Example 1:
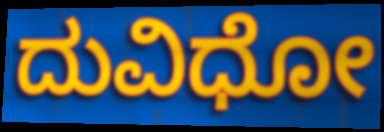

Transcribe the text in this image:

ದುವಿಧೋ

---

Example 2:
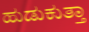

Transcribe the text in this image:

ಹುಡುಕುತ್ತಾ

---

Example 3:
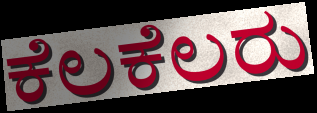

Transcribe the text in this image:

ಕೆಲಕೆಲರು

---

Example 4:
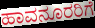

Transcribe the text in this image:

ಹಾವನೂರರಿಗೆ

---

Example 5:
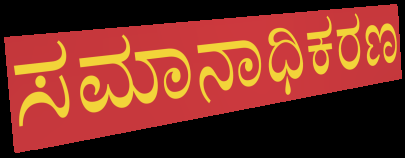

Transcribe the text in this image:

ಸಮಾನಾಧಿಕರಣ